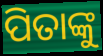
ପିତାଙ୍କୁ